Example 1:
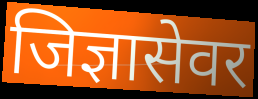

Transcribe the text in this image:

जिज्ञासेवर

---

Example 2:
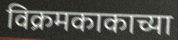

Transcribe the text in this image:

विक्रमकाकाच्या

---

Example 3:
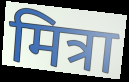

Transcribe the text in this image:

मित्रा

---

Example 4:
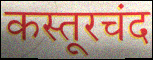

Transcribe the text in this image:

कस्तूरचंद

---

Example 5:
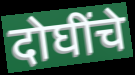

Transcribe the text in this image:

दोघींचे